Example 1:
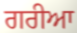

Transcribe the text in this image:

ਗਰੀਆ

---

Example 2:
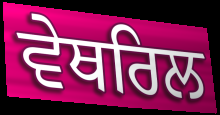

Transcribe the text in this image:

ਵੇਥਰਿਲ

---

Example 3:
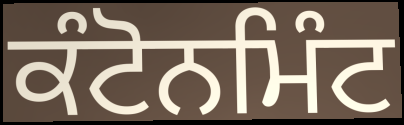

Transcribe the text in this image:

ਕੰਟੋਨਮਿੰਟ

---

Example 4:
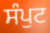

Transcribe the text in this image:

ਸੰਪੁਟ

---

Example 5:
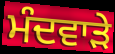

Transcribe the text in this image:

ਮੰਦਵਾੜੇ